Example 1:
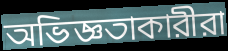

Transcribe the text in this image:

অভিজ্ঞতাকারীরা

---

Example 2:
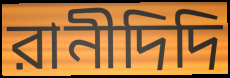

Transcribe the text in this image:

রানীদিদি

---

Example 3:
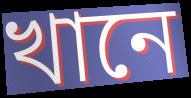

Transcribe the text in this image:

খানে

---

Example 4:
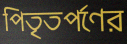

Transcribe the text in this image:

পিতৃতর্পণের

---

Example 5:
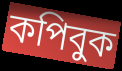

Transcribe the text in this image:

কপিবুক